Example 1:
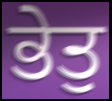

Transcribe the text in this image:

ਭੇਤੁ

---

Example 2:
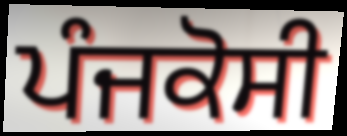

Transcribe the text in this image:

ਪੰਜਕੋਸੀ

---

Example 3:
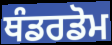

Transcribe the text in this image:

ਥੰਡਰਡੋਮ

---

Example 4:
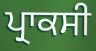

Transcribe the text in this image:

ਪ੍ਰਾਕਸੀ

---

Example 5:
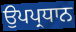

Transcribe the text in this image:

ਉਪਪ੍ਰਧਾਨ